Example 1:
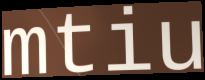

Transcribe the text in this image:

mtiu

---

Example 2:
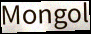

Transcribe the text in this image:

Mongol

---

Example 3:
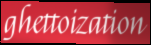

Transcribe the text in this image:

ghettoization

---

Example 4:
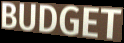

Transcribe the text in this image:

BUDGET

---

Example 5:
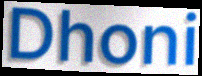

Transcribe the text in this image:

Dhoni